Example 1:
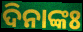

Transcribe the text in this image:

ଦିନାଙ୍କଃ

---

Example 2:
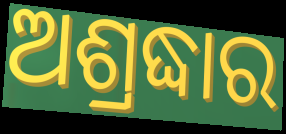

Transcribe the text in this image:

ଅଶ୍ରଦ୍ଧାର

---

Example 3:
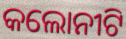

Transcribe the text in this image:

କଲୋନୀଟି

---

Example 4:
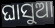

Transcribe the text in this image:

ଘାସୁଆ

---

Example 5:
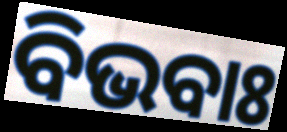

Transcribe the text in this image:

ବିଭବାଃ